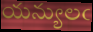
యన్యులఁ